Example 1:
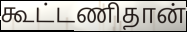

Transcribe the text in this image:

கூட்டணிதான்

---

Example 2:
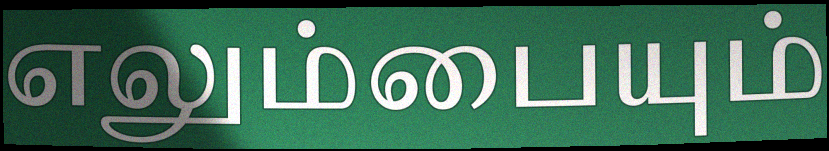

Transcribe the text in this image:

எலும்பையும்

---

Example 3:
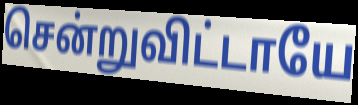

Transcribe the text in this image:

சென்றுவிட்டாயே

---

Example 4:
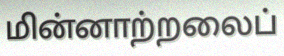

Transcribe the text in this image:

மின்னாற்றலைப்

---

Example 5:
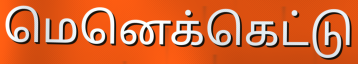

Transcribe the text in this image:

மெனெக்கெட்டு